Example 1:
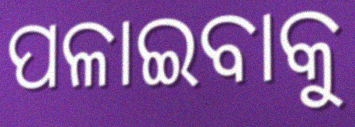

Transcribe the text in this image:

ପଳାଇବାକୁ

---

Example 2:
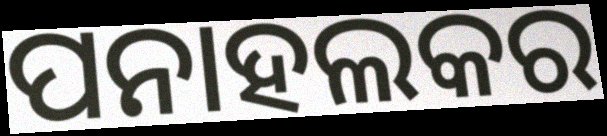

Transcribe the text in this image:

ପନାହଲକର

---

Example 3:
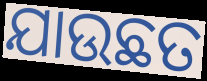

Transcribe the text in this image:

ଯାଉଛତ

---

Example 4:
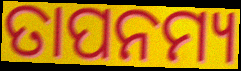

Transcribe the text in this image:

ତାପନମ୍ୟ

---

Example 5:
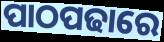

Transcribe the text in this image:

ପାଠପଢାରେ